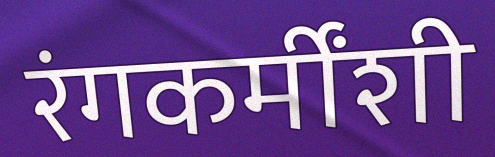
रंगकर्मींशी